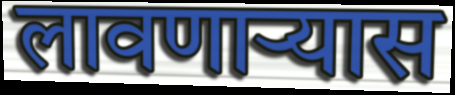
लावणाऱ्यास